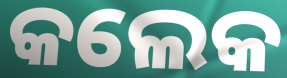
କଲେକ